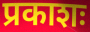
प्रकाशः